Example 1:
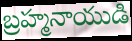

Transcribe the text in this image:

బ్రహ్మనాయుడి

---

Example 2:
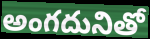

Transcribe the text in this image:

అంగదునితో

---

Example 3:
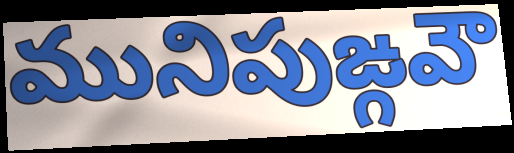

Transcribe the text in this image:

మునిపుఙ్గవౌ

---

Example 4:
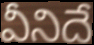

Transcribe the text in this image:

వీనిదే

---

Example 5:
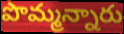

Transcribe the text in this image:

పొమ్మన్నారు